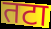
तटा